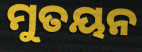
ମୁତୟନ